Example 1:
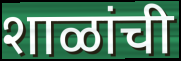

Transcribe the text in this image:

शाळांची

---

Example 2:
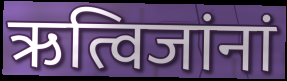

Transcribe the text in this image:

ऋत्विजांनां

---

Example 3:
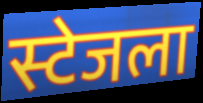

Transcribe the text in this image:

स्टेजला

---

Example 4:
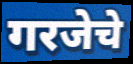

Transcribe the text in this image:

गरजेचे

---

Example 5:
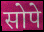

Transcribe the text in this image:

सोपे